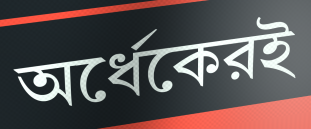
অর্ধেকেরই